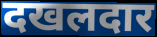
दखलदार